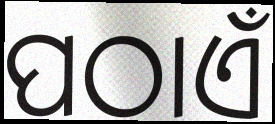
ପଠାଏଁ